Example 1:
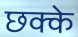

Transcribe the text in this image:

छक्के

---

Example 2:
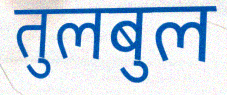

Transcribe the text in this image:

तुलबुल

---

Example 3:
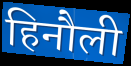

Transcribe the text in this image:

हिनौली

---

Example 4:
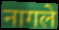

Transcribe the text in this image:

नागले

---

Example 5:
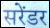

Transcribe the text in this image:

सरेंडर